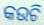
କଉଚି